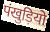
पंखुड़ियो